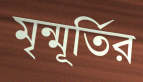
মৃন্মূর্তির